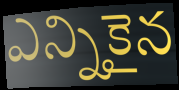
ఎన్నికైన